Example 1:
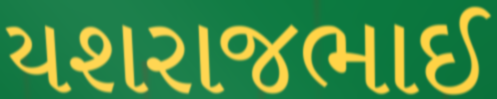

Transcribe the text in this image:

યશરાજભાઈ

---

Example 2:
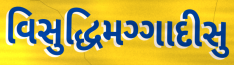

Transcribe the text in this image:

વિસુદ્ધિમગ્ગાદીસુ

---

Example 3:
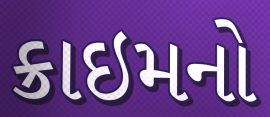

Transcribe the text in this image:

ક્રાઇમનો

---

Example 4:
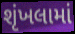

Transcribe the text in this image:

શૃંખલામાં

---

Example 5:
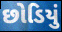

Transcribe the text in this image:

છોડિયું